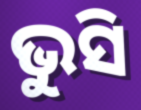
ଭୁସି